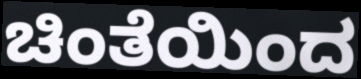
ಚಿಂತೆಯಿಂದ